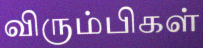
விரும்பிகள்